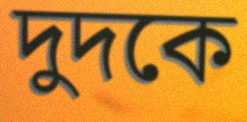
দুদকে